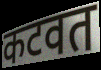
कटवत